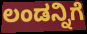
ಲಂಡನ್ನಿಗೆ